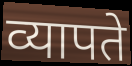
व्यापते